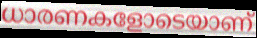
ധാരണകളോടെയാണ്